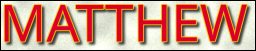
MATTHEW